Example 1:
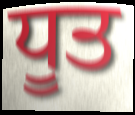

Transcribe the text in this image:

ਧੂਤ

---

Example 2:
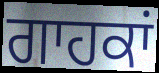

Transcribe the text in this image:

ਗਾਹਕਾਂ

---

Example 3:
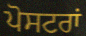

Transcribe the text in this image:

ਪੋਸਟਰਾਂ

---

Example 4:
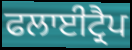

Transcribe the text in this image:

ਫਲਾਈਟ੍ਰੈਪ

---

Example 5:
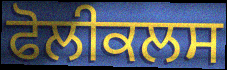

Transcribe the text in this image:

ਫੋਲੀਕਲਸ